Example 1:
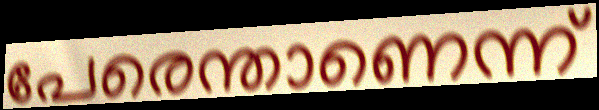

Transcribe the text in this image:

പേരെന്താണെന്ന്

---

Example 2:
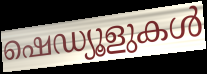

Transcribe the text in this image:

ഷെഡ്യൂളുകൾ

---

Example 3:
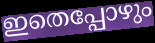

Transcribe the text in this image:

ഇതെപ്പോഴും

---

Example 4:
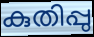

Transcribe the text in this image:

കുതിപ്പു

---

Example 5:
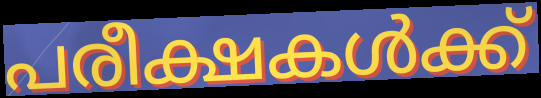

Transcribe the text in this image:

പരീക്ഷകൾക്ക്